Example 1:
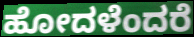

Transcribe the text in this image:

ಹೋದಳೆಂದರೆ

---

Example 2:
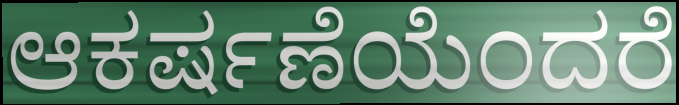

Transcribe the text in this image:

ಆಕರ್ಷಣೆಯೆಂದರೆ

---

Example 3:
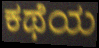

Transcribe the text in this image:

ಕಥೆಯ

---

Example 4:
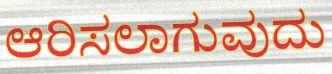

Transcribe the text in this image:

ಆರಿಸಲಾಗುವುದು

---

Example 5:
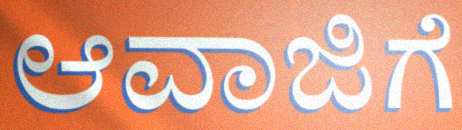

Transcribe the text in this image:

ಆವಾಜಿಗೆ